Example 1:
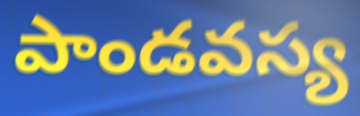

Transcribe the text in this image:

పాండవస్య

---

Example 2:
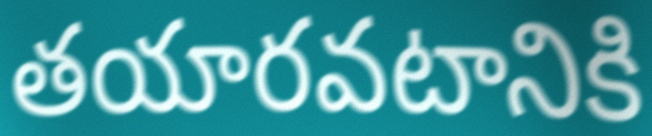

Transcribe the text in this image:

తయారవటానికి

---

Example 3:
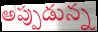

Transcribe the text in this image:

అప్పుడున్న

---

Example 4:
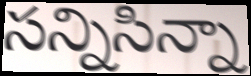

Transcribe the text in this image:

సన్నిసిన్నా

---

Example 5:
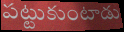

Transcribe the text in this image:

పట్టుకుంటాడు